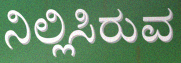
ನಿಲ್ಲಿಸಿರುವ